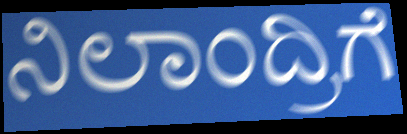
ನಿಲಾಂದ್ರಿಗೆ